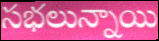
సభలున్నాయి